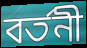
বর্তনী